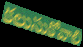
కలుసుకోవాలి